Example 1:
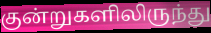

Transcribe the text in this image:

குன்றுகளிலிருந்து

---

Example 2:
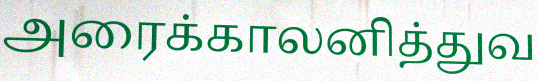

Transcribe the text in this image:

அரைக்காலனித்துவ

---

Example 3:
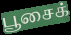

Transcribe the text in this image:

பூசைக்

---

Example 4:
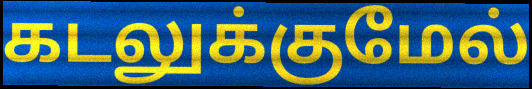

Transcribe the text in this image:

கடலுக்குமேல்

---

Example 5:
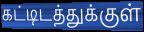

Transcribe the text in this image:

கட்டிடத்துக்குள்